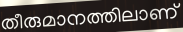
തീരുമാനത്തിലാണ്